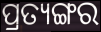
ପ୍ରତ୍ୟଙ୍ଗର